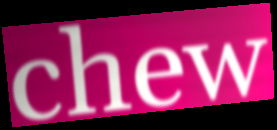
chew